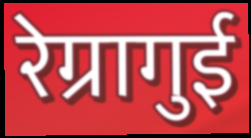
रेग्रागुई